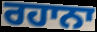
ਰਹਾਨਾ